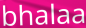
bhalaa